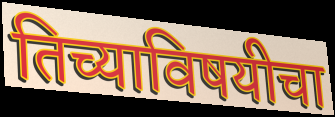
तिच्याविषयीचा